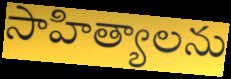
సాహిత్యాలను